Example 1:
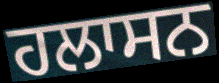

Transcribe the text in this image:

ਹਲਾਸਨ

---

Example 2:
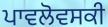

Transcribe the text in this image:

ਪਾਵਲੋਵਸਕੀ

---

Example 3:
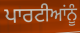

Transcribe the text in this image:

ਪਾਰਟੀਆਂਨੂੰ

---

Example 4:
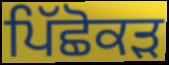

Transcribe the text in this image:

ਪਿੱਛੋਕੜ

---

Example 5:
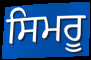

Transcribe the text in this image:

ਸਿਮਰੂ